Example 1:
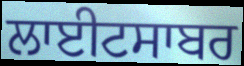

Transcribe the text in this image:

ਲਾਈਟਸਾਬਰ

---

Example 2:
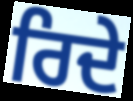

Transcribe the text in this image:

ਰਿਦੇ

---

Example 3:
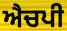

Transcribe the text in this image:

ਐਚਪੀ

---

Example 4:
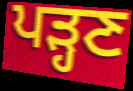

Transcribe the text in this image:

ਪੜ੍ਹਣ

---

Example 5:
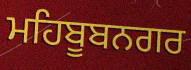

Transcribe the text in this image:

ਮਹਿਬੂਬਨਗਰ